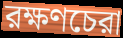
রক্ষণচেরা